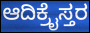
ಆದಿಕ್ರೈಸ್ತರ